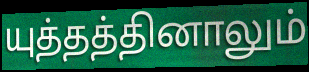
யுத்தத்தினாலும்